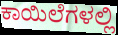
ಕಾಯಿಲೆಗಳಲ್ಲಿ